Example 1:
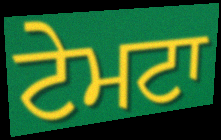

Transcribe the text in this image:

ਟੇਮਟਾ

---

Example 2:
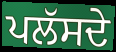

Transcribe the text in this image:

ਪਲੱਸਦੇ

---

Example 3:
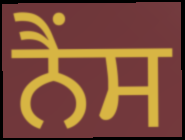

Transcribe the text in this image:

ਨੈਂਸ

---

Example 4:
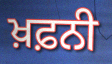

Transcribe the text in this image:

ਖ਼ਫ਼ਨੀ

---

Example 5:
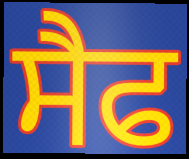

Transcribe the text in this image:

ਸੈਫ